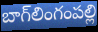
బాగ్‌లింగంపల్లి